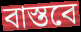
বাস্তবে